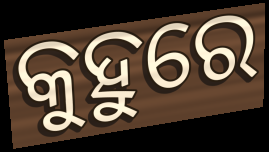
କୁହୁରେ